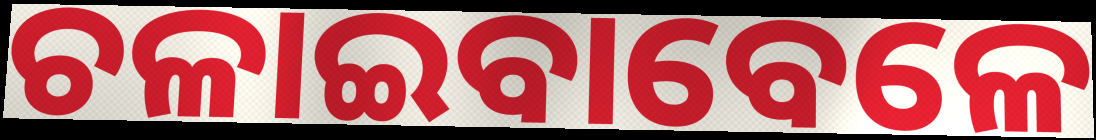
ଚଳାଇବାବେଳେ